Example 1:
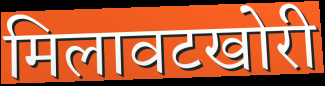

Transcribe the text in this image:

मिलावटखोरी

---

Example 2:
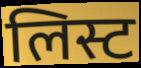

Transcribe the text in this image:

लिस्ट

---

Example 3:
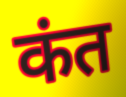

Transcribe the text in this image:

कंत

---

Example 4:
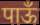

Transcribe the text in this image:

पाऊँ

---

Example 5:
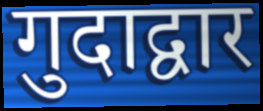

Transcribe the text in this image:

गुदाद्वार